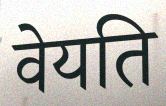
वेयति